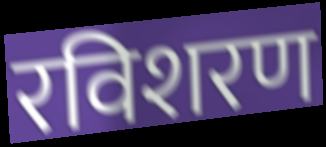
रविशरण